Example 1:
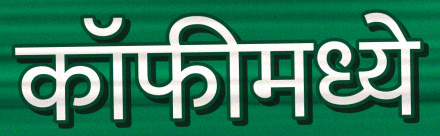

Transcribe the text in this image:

कॉफीमध्ये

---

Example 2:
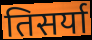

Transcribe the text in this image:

तिसर्या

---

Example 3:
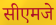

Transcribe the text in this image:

सीएमजे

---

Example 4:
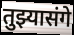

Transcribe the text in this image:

तुझ्यासंगे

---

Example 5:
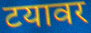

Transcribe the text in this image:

टयावर